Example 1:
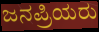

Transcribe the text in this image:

ಜನಪ್ರಿಯರು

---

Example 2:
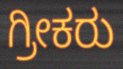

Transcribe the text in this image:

ಗ್ರೀಕರು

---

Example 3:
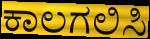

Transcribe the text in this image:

ಕಾಲಗಲಿಸಿ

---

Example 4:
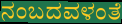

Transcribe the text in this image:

ನಂಬದವಳಂತೆ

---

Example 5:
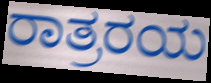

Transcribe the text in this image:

ರಾತ್ರರಯ